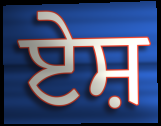
ਏਸ਼